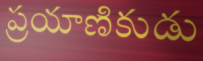
ప్రయాణికుడు